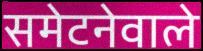
समेटनेवाले